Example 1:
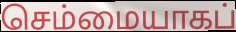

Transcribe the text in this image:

செம்மையாகப்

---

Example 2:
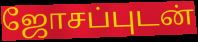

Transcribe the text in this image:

ஜோசப்புடன்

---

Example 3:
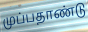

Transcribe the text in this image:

முப்பதாண்டு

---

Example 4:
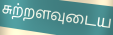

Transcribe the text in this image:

சுற்றளவுடைய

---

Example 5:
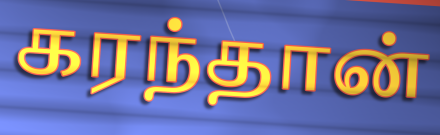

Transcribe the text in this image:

கரந்தான்